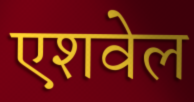
एशवेल